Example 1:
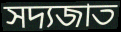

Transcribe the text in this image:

সদ্যজাত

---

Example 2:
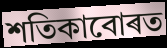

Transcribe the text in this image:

শতিকাবোৰত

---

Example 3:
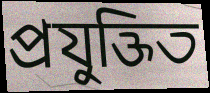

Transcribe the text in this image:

প্ৰযুক্তিত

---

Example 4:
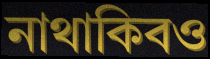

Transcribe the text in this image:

নাথাকিবও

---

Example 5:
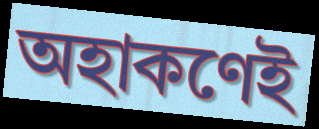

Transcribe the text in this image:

অহাকণেই